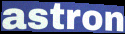
astron